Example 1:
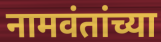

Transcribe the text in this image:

नामवंतांच्या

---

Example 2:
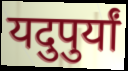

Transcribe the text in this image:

यदुपुर्यां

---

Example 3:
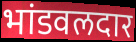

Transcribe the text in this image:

भांडवलदार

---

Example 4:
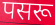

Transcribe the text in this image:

पसरू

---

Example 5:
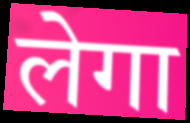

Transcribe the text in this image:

लेगा